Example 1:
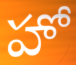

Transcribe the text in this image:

హో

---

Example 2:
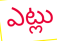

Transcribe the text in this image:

ఎట్లు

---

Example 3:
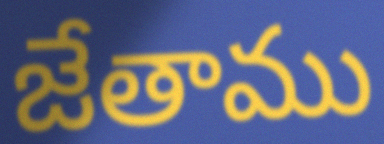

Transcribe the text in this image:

జేతాము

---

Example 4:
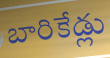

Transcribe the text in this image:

బారికేడ్లు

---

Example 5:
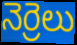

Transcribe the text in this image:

నెర్రెలు